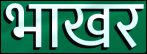
भाखर